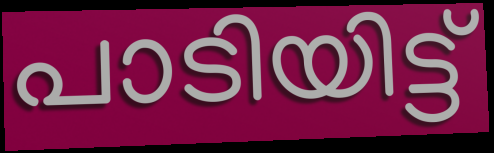
പാടിയിട്ട്